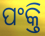
ପଂକ୍ତି